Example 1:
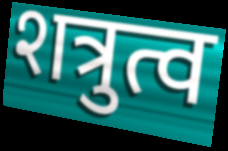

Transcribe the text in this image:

शत्रुत्व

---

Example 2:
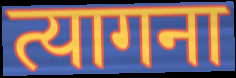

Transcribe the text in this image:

त्यागना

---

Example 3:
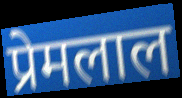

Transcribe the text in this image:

प्रेमलाल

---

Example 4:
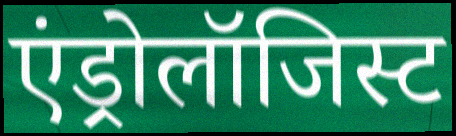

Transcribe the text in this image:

एंड्रोलॉजिस्ट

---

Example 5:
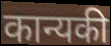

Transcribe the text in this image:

कान्यकी